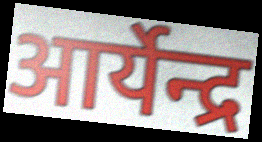
आर्येन्द्र